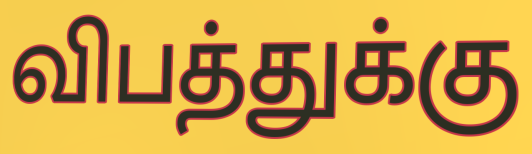
விபத்துக்கு